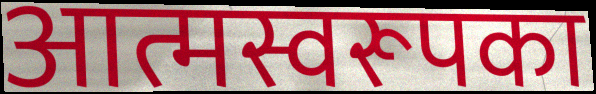
आत्मस्वरूपका